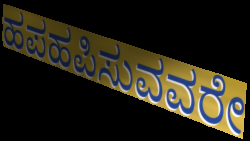
ಹಪಹಪಿಸುವವರೇ